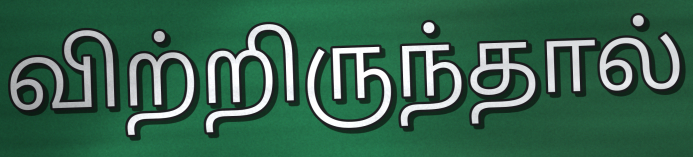
விற்றிருந்தால்